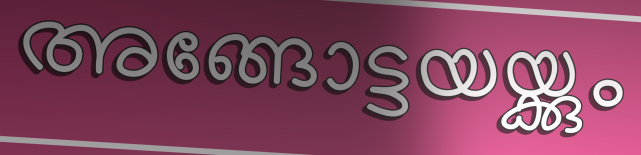
അങ്ങോട്ടയയ്ക്കും